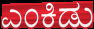
ಎಂಕಿಡು